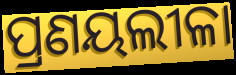
ପ୍ରଣୟଲୀଳା